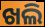
ଖଲି